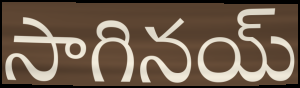
సాగినయ్